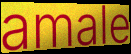
amale